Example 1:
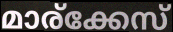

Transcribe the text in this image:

മാര്ക്കേസ്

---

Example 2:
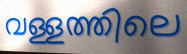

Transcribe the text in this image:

വള്ളത്തിലെ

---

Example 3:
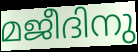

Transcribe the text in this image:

മജീദിനു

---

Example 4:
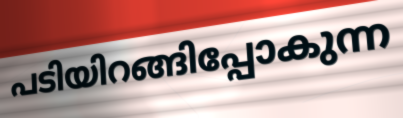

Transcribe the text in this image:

പടിയിറങ്ങിപ്പോകുന്ന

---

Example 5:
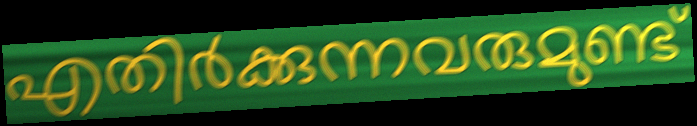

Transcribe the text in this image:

എതിർക്കുന്നവരുമുണ്ട്